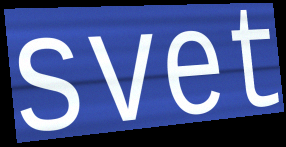
svet